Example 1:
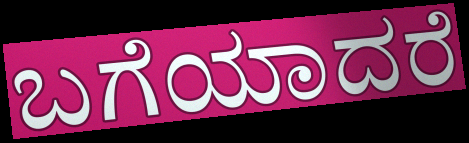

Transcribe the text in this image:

ಬಗೆಯಾದರೆ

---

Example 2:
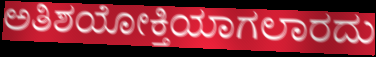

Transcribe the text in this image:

ಅತಿಶಯೋಕ್ತಿಯಾಗಲಾರದು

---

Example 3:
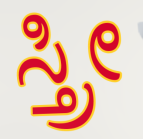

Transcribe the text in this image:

ಸ್ತ್ರೀ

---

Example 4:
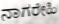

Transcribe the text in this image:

ನಾಗರೇಹಿ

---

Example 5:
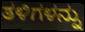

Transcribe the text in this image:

ತಳಿಗಳನ್ನು